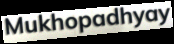
Mukhopadhyay